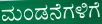
ಮಂಡನೆಗಳಿಗೆ